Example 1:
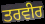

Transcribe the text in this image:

ਤਰਵੀਰ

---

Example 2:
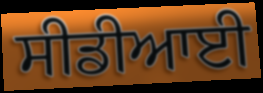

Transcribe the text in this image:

ਸੀਡੀਆਈ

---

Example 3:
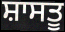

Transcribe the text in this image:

ਸ਼ਾਸਤੂ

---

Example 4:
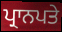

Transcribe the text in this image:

ਪ੍ਰਾਨਪਤੇ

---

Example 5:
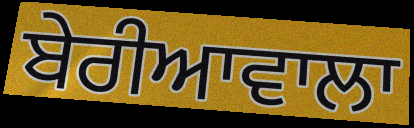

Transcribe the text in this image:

ਬੇਰੀਆਵਾਲਾ